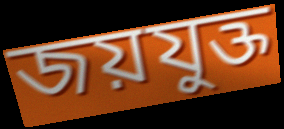
জয়যুক্ত